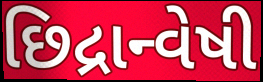
છિદ્રાન્વેષી